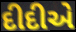
દીદીએ